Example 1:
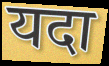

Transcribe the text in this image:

यदा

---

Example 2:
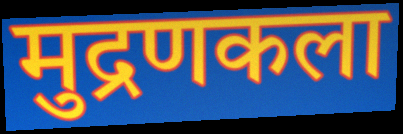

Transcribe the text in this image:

मुद्रणकला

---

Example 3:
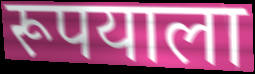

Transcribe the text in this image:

रूपयाला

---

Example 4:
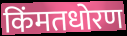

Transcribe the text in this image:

किंमतधोरण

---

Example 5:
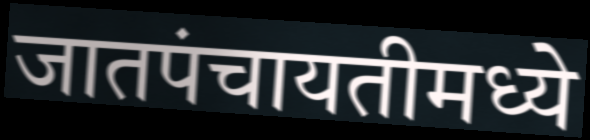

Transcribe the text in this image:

जातपंचायतीमध्ये